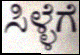
ಸಿಳ್ಳೆಗೆ